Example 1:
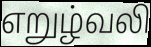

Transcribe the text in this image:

எறுழ்வலி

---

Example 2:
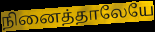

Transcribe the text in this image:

நினைத்தாலேயே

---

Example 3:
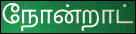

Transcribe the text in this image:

நோன்றாட்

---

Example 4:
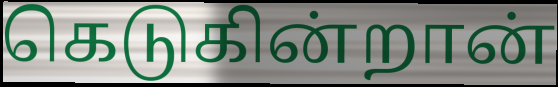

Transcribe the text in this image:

கெடுகின்றான்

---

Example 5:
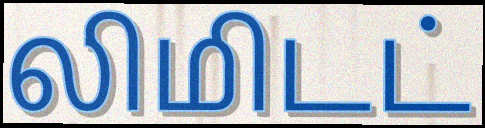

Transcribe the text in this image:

லிமிடட்